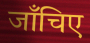
जाँचिए